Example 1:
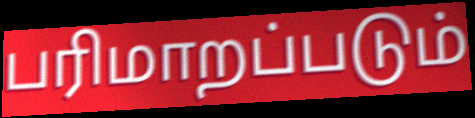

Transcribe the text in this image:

பரிமாறப்படும்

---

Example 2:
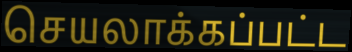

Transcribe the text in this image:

செயலாக்கப்பட்ட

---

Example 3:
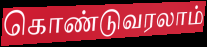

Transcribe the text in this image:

கொண்டுவரலாம்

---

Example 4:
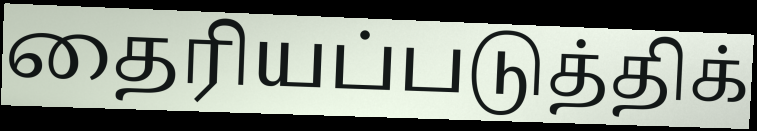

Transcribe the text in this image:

தைரியப்படுத்திக்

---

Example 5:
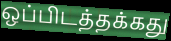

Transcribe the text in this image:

ஒப்பிடத்தக்கது